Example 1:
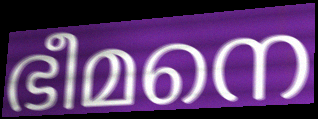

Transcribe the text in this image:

ഭീമനെ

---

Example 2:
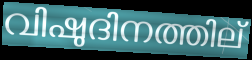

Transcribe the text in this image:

വിഷുദിനത്തില്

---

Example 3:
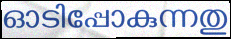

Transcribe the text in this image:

ഓടിപ്പോകുന്നതു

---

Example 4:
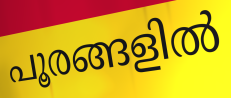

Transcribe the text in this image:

പൂരങ്ങളിൽ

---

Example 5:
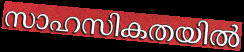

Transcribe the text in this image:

സാഹസികതയിൽ